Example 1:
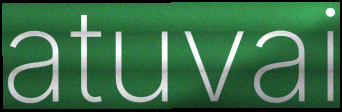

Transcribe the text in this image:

atuvai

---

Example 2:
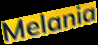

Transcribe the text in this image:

Melania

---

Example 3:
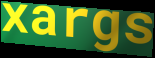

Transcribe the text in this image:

xargs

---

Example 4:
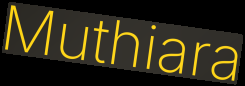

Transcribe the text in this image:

Muthiara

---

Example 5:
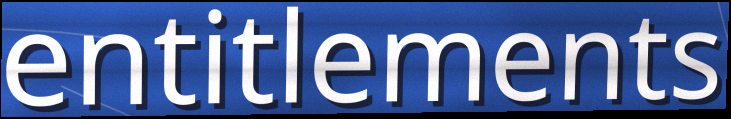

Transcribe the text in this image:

entitlements